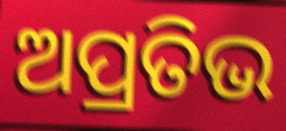
ଅପ୍ରତିଭ